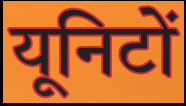
यूनिटों